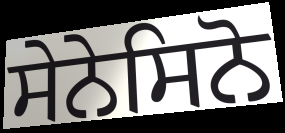
ਸੇਨੇਸਿਨੋ